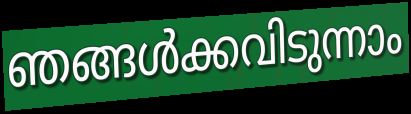
ഞങ്ങൾക്കവിടുന്നാം